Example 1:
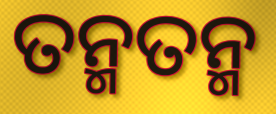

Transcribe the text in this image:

ତନ୍ମତନ୍ମ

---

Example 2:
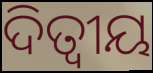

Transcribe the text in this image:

ଦିତ୍ୱୀୟ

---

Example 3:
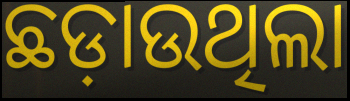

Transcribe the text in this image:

ଛଡ଼ାଉଥିଲା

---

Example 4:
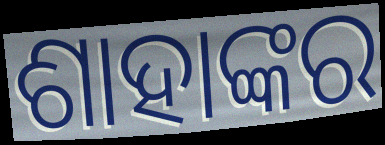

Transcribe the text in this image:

ଶାହାଙ୍କର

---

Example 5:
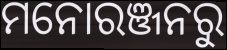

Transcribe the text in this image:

ମନୋରଞ୍ଜନରୁ